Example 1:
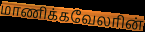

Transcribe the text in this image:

மாணிக்கவேலரின்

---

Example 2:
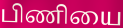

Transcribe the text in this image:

பிணியை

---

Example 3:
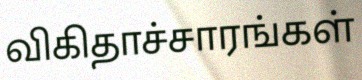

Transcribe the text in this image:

விகிதாச்சாரங்கள்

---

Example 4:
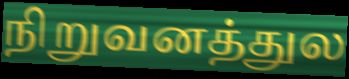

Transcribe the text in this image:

நிறுவனத்துல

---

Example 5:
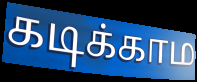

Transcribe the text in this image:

கடிக்காம